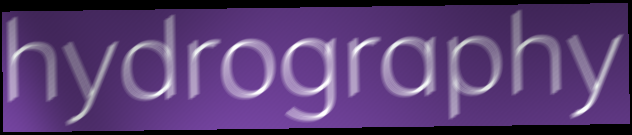
hydrography